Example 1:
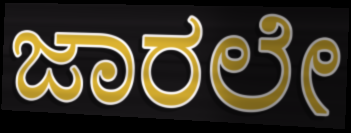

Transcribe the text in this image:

ಜಾರಲೇ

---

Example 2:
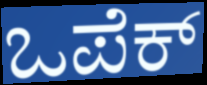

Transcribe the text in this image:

ಒಪೆಕ್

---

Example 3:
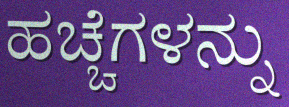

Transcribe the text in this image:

ಹಚ್ಚೆಗಳನ್ನು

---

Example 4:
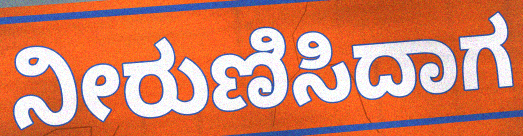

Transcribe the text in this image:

ನೀರುಣಿಸಿದಾಗ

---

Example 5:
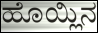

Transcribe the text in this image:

ಹೊಯ್ಲಿನ